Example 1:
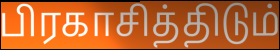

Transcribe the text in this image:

பிரகாசித்திடும்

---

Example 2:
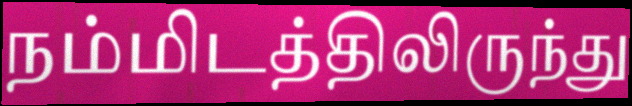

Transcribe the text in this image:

நம்மிடத்திலிருந்து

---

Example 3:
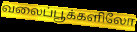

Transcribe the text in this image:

வலைப்பூக்களிலோ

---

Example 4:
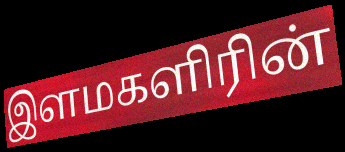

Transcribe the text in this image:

இளமகளிரின்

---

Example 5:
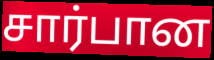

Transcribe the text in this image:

சார்பான